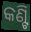
କଣ୍ଟି